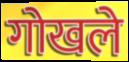
गोखले